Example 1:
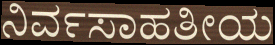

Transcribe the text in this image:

ನಿರ್ವಸಾಹತೀಯ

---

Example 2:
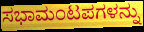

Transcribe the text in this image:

ಸಭಾಮಂಟಪಗಳನ್ನು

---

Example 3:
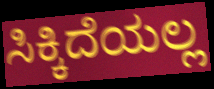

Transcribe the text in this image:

ಸಿಕ್ಕಿದೆಯಲ್ಲ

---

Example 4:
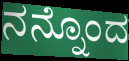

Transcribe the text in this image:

ನನ್ನೊಂದ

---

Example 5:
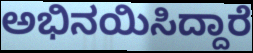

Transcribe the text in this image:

ಅಭಿನಯಿಸಿದ್ದಾರೆ